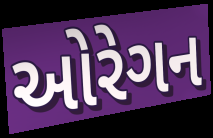
ઓરેગન